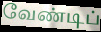
வேண்டிப்